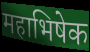
महाभिषेक